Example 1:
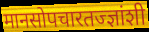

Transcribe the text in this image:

मानसोपचारतज्ज्ञांशी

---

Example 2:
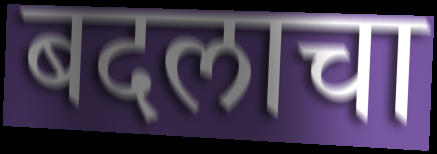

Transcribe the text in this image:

बदलाचा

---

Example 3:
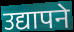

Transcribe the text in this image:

उद्यापने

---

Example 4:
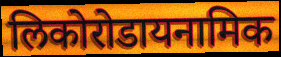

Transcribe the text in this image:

लिकोरोडायनामिक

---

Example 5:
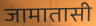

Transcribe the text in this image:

जामातासी